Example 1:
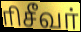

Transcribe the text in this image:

ரிசீவர்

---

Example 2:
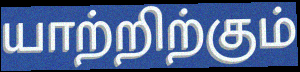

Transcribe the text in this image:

யாற்றிற்கும்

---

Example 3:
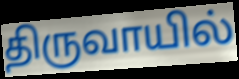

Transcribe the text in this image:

திருவாயில்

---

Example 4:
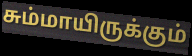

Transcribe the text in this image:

சும்மாயிருக்கும்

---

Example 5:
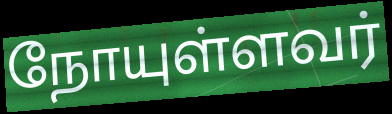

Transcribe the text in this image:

நோயுள்ளவர்